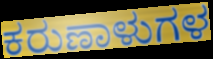
ಕರುಣಾಳುಗಳ